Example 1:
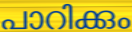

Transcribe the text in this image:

പാറിക്കും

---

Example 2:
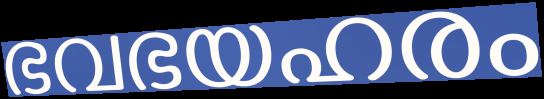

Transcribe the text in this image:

ഭവഭയഹരം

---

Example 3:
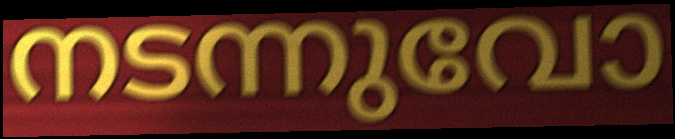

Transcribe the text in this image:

നടന്നുവോ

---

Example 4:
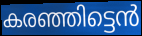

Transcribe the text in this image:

കരഞ്ഞിട്ടെൻ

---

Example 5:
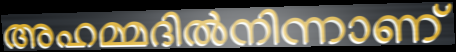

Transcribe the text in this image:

അഹമ്മദിൽനിന്നാണ്